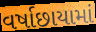
વર્ષાછાયામાં